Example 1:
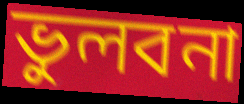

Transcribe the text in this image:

ভুলবনা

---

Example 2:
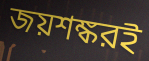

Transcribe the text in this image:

জয়শঙ্করই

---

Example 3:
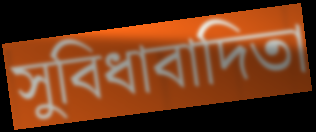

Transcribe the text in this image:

সুবিধাবাদিতা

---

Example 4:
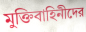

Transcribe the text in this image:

মুক্তিবাহিনীদের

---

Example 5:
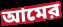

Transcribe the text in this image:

আমের